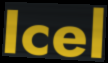
Icel